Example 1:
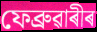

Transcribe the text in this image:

ফেব্ৰুৱাৰীৰ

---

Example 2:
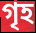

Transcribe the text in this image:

গৃহ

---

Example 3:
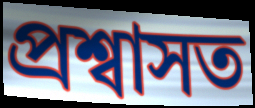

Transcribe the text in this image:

প্ৰশ্বাসত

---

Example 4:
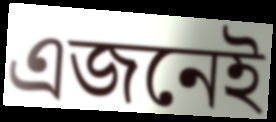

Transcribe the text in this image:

এজনেই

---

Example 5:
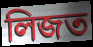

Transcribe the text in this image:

লিজত